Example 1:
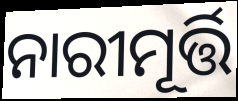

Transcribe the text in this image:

ନାରୀମୂର୍ତ୍ତି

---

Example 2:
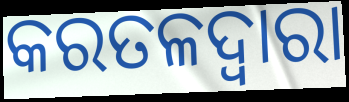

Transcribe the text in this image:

କରତଳଦ୍ୱାରା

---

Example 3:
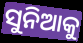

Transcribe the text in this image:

ସୁନିଆକୁ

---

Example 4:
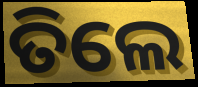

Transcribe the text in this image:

ତିଲେ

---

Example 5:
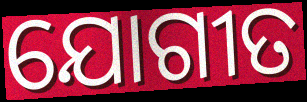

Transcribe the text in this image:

ଯୋଗୀତ